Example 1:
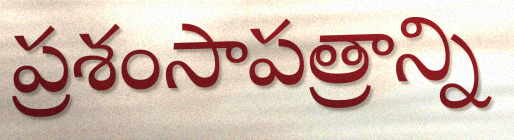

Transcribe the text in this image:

ప్రశంసాపత్రాన్ని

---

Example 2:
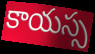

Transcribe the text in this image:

కాయస్స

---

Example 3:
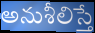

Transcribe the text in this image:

అనుశీలిస్తే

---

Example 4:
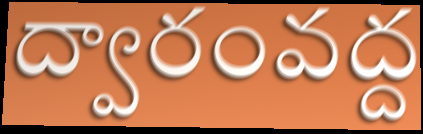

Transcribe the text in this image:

ద్వారంవద్ద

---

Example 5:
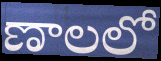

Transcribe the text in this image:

ణాలలో